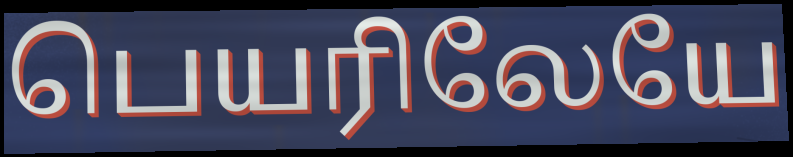
பெயரிலேயே